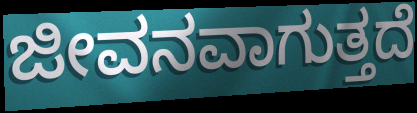
ಜೀವನವಾಗುತ್ತದೆ